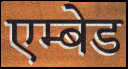
एम्बेड